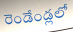
రెండేండ్లలో